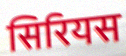
सिरियस